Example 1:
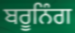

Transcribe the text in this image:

ਬਰੂਨਿੰਗ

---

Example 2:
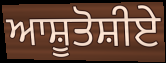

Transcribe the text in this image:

ਆਸ਼ੂਤੋਸ਼ੀਏ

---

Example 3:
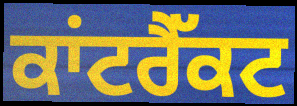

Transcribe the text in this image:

ਕਾਂਟਰੈੱਕਟ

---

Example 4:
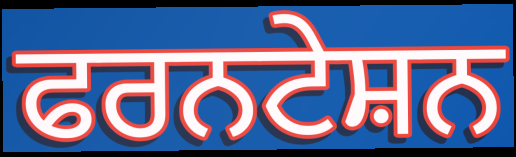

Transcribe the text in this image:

ਫਰਨਟੇਸ਼ਨ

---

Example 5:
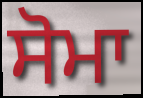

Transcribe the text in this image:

ਸੋਮਾ